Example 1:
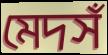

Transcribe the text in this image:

মেদসঁ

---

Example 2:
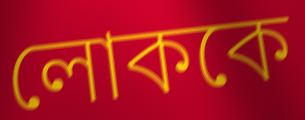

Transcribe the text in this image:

লোককে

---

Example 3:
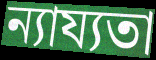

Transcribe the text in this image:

ন্যায্যতা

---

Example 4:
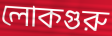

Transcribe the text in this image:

লোকগুরু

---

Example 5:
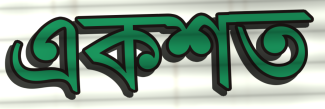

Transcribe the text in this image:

একশত